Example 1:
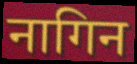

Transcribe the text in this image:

नागिन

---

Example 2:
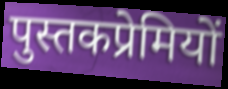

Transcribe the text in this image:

पुस्तकप्रेमियों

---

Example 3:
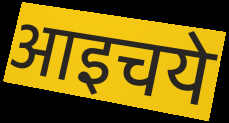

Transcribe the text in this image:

आइचये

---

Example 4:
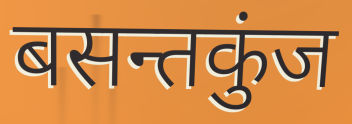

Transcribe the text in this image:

बसन्तकुंज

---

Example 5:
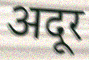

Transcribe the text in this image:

अदूर